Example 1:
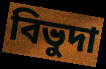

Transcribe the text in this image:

বিভুদা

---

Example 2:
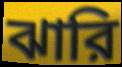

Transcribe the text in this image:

ঝারি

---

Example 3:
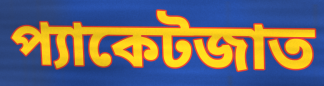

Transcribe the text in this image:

প্যাকেটজাত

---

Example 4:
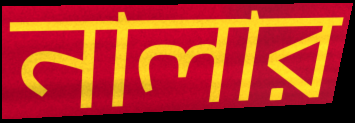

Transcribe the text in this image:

নালার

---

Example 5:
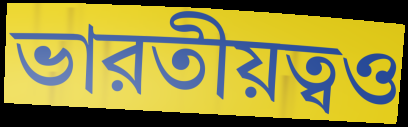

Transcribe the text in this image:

ভারতীয়ত্বও